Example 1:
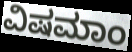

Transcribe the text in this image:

ವಿಷಮಾಂ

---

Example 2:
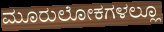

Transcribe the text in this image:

ಮೂರುಲೋಕಗಳಲ್ಲೂ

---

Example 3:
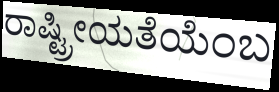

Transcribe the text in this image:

ರಾಷ್ಟ್ರೀಯತೆಯೆಂಬ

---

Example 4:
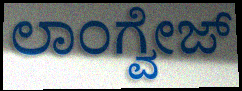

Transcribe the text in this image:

ಲಾಂಗ್ವೇಜ್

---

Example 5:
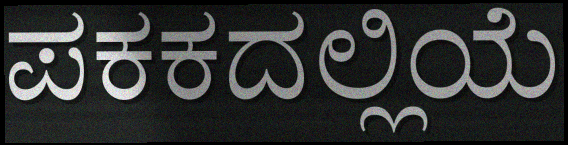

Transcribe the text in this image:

ಪಕಕದಲ್ಲಿಯೆ